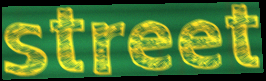
street